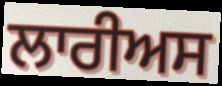
ਲਾਰੀਅਸ